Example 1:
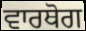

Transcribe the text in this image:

ਵਾਰਥੋਗ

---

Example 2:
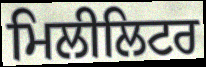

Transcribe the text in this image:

ਮਿਲੀਲਿਟਰ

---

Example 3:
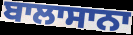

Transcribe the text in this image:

ਬਾਲਾਸਾਨਾ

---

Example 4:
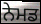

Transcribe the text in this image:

ਨੇਮਡ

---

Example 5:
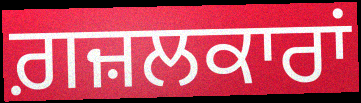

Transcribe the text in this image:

ਗ਼ਜ਼ਲਕਾਰਾਂ